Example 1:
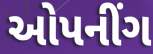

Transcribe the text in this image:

ઓપનીંગ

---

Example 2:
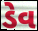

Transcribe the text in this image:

ડેવ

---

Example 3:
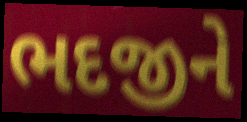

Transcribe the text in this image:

ભદજીને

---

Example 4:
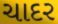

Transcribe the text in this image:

ચાદર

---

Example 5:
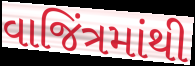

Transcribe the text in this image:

વાજિંત્રમાંથી